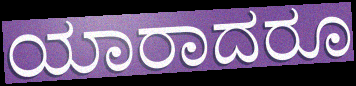
ಯಾರಾದರೂ